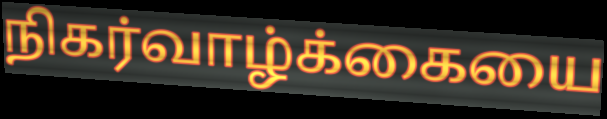
நிகர்வாழ்க்கையை